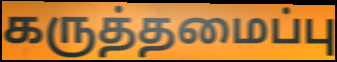
கருத்தமைப்பு